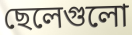
ছেলেগুলো